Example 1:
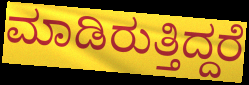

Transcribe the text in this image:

ಮಾಡಿರುತ್ತಿದ್ದರೆ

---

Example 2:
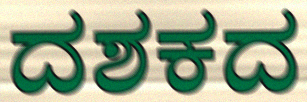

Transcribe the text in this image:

ದಶಕದ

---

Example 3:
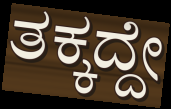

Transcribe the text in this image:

ತಕ್ಕದ್ದೇ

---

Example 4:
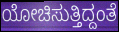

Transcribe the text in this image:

ಯೋಚಿಸುತ್ತಿದ್ದಂತೆ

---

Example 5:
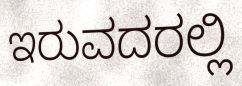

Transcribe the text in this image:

ಇರುವದರಲ್ಲಿ